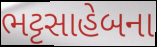
ભટ્ટસાહેબના